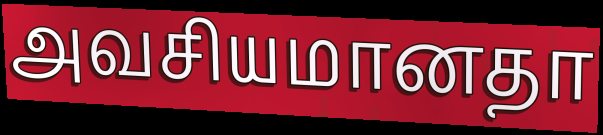
அவசியமானதா